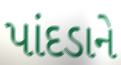
પાંદડાને